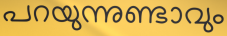
പറയുന്നുണ്ടാവും